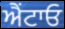
ਐਂਟਾਓ